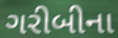
ગરીબીના